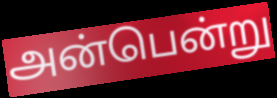
அன்பென்று